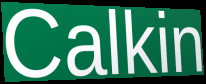
Calkin